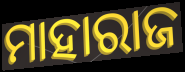
ମାହାରାଜ